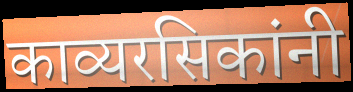
काव्यरसिकांनी